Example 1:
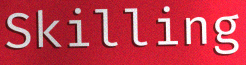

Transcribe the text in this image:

Skilling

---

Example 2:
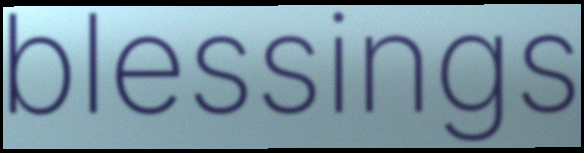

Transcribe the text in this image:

blessings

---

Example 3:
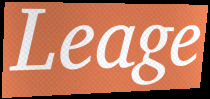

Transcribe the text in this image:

Leage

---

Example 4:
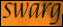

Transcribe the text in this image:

swarg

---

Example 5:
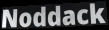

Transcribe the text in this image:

Noddack